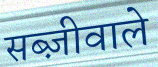
सब्ज़ीवाले